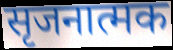
सृजनात्मक